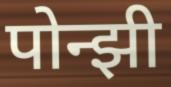
पोन्झी